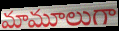
మామూలుగా